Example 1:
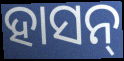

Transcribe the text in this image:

ହାସନ୍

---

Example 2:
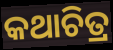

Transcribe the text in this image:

କଥାଚିତ୍ର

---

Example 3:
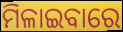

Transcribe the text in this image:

ମିଳାଇବାରେ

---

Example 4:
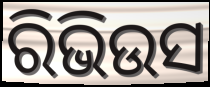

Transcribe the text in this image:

ରିଭିଉସ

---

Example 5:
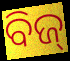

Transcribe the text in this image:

ବିଜ୍